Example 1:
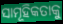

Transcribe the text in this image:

ସାମୂହିକତାକୁ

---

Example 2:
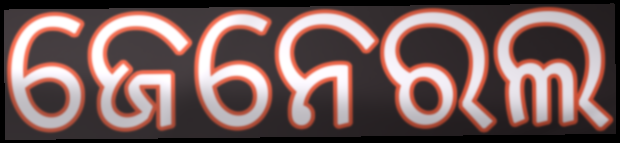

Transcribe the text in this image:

ଜେନେରଲ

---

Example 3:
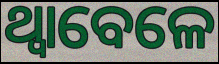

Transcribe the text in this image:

ଥ୍ବାବେଳେ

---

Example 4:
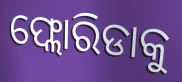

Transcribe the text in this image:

ଫ୍ଲୋରିଡାକୁ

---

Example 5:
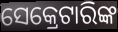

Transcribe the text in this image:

ସେକ୍ରେଟାରିଙ୍କ